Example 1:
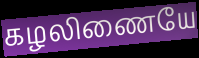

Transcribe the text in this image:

கழலிணையே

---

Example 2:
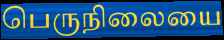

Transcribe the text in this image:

பெருநிலையை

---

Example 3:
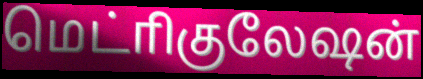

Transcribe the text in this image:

மெட்ரிகுலேஷன்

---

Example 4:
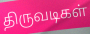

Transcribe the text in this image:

திருவடிகள்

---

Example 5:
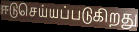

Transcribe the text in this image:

ஈடுசெய்யப்படுகிறது